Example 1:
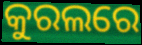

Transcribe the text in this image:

କୁରଲରେ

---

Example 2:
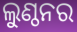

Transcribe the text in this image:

ଲୁଣ୍ଠନର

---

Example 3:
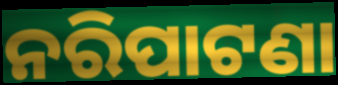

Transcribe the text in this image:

ନରିପାଟଣା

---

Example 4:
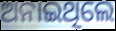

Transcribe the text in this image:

ଅନାଇଥିଲେ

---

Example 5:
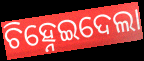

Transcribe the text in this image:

ଚିହ୍ନେଇଦେଲା